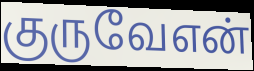
குருவேஎன்